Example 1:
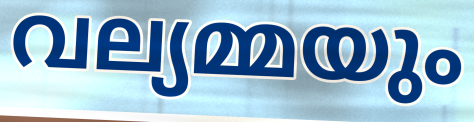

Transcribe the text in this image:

വല്യമ്മയും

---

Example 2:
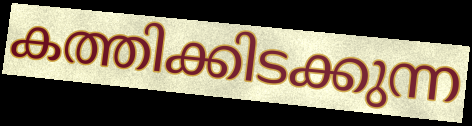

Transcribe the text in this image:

കത്തിക്കിടക്കുന്ന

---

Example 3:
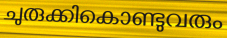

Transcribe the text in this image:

ചുരുക്കികൊണ്ടുവരും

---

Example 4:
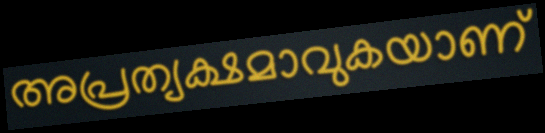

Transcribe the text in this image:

അപ്രത്യക്ഷമാവുകയാണ്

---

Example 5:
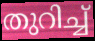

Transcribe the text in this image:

തുറിച്ച്